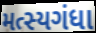
મત્સ્યગંધા